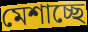
মেশাচ্ছে